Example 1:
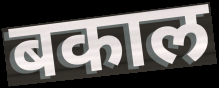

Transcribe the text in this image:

बकाल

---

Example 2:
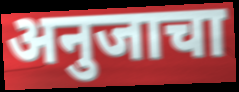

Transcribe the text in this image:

अनुजाचा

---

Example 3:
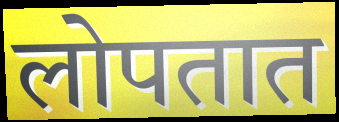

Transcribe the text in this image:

लोपतात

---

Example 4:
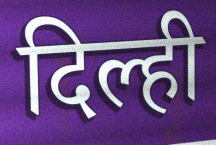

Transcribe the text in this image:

दिल्ही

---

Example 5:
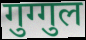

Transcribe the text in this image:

गुग्गुल